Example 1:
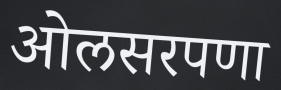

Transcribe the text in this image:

ओलसरपणा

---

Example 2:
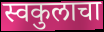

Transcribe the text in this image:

स्वकुलाचा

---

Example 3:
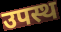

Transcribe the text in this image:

उपस्थ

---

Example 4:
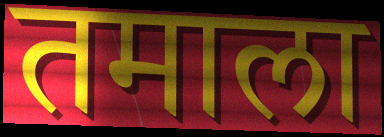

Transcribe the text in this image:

तमाला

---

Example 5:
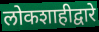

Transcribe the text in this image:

लोकशाहीद्वारे